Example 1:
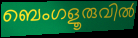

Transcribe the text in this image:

ബെംഗളൂരുവിൽ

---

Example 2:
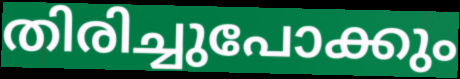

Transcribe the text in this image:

തിരിച്ചുപോക്കും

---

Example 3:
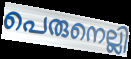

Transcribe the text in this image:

പെരുനെല്ലി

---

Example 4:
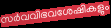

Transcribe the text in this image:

സർവവിഭവശേഷികളും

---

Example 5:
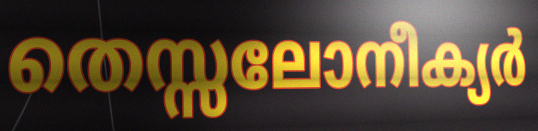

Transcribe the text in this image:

തെസ്സലോനീക്യർ